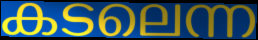
കടലെന്ന